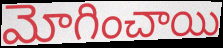
మోగించాయి